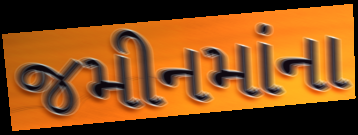
જમીનમાંના